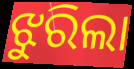
ଝୁରିଲା